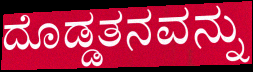
ದೊಡ್ಡತನವನ್ನು